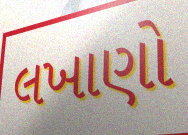
લખાણો